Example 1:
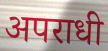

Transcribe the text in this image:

अपराधी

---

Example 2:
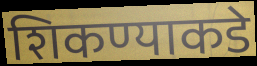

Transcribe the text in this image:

शिकण्याकडे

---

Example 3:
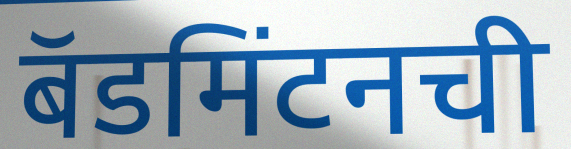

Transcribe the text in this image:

बॅडमिंटनची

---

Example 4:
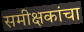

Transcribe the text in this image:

समीक्षकांचा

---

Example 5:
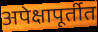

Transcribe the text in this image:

अपेक्षापूर्तीत